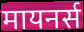
मायनर्स